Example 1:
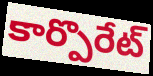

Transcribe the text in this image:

కార్పొరేట్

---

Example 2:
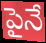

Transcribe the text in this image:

పైనే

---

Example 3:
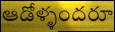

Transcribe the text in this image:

ఆడోళ్ళందరూ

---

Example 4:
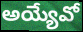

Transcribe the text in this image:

అయ్యేవో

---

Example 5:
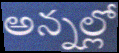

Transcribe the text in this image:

అన్నల్లో